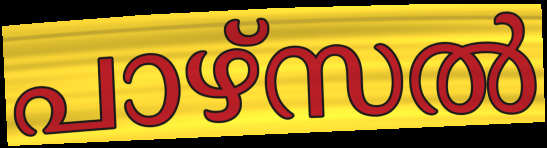
പാഴ്സൽ